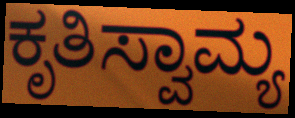
ಕೃತಿಸ್ವಾಮ್ಯ